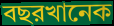
বছরখানেক